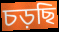
চড়ছি